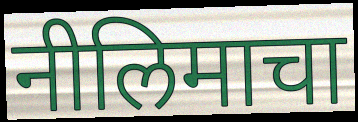
नीलिमाचा